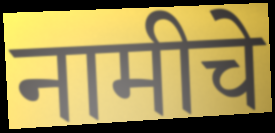
नामीचे